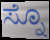
ಸ್ನೊ